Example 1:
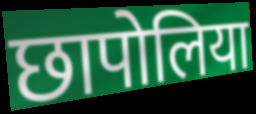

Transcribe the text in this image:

छापोलिया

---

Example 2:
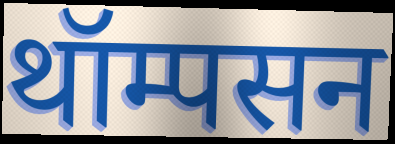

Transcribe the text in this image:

थॉम्पसन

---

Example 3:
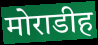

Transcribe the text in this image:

मोराडीह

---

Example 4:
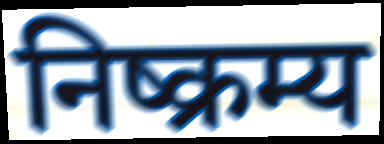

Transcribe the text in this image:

निष्क्रम्य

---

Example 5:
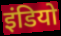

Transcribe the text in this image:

इंडियो